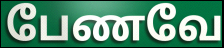
பேணவே